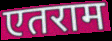
एतराम